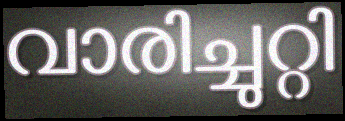
വാരിച്ചുറ്റി